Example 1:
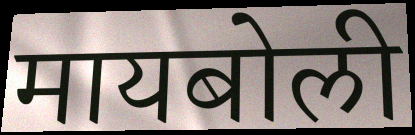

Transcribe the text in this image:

मायबोली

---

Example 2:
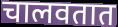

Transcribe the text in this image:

चालवतात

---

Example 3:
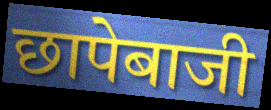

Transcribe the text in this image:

छापेबाजी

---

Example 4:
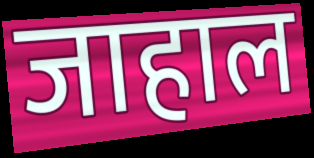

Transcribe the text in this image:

जाहाल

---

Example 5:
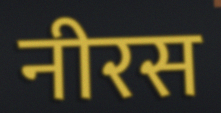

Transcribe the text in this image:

नीरस